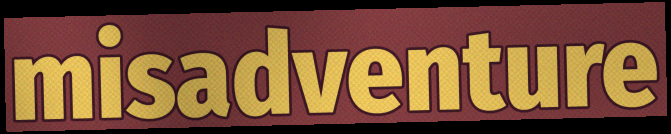
misadventure